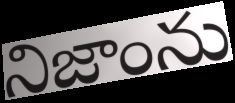
నిజాంను